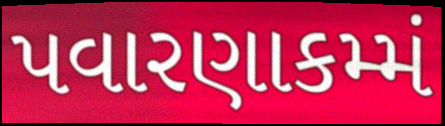
પવારણાકમ્મં